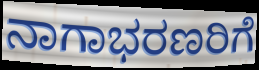
ನಾಗಾಭರಣರಿಗೆ